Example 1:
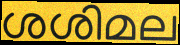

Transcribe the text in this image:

ശശിമല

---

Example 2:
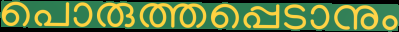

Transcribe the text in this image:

പൊരുത്തപ്പെടാനും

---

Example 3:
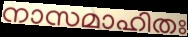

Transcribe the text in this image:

നാസമാഹിതഃ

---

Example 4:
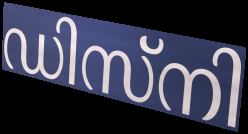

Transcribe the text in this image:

ഡിസ്നി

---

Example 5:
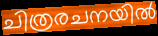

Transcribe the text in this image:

ചിത്രരചനയിൽ